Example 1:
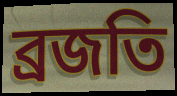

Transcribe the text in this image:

ব্রজতি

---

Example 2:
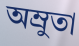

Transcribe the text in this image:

অম্রুতা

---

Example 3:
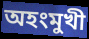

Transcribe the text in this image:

অহংমুখী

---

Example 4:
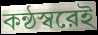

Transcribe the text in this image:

কন্ঠস্বরেই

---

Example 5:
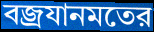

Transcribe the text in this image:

বজ্রযানমতের